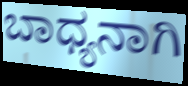
ಬಾಧ್ಯನಾಗಿ